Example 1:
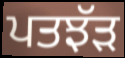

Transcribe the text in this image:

ਪਤਝੱੜ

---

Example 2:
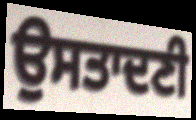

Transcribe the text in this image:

ਉਸਤਾਦਣੀ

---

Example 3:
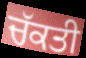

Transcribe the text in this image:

ਚੱਕਤੀ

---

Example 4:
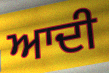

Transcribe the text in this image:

ਆਦੀ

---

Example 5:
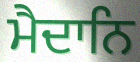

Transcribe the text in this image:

ਮੈਦਾਨਿ